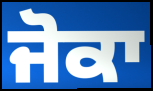
ਜੋਕਾ